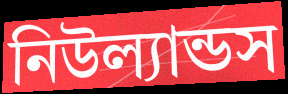
নিউল্যান্ডস